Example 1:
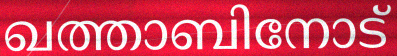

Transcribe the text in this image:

ഖത്താബിനോട്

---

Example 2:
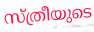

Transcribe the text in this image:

സ്ത്രീയുടെ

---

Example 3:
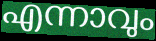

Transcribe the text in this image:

എന്നാവും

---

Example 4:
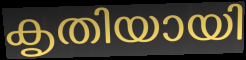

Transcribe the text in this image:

കൃതിയായി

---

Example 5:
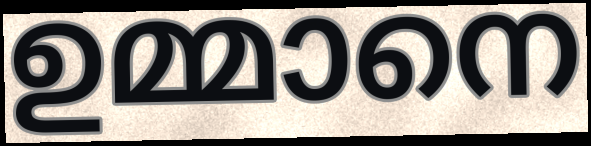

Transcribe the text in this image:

ഉമ്മാനെ